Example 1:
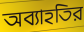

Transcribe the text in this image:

অব্যাহতির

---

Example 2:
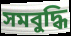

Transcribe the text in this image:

সমবুদ্ধি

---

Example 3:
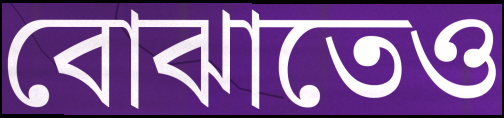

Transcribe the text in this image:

বোঝাতেও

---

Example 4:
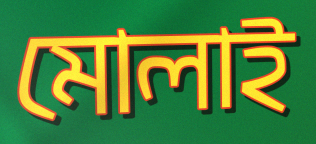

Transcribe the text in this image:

মোলাই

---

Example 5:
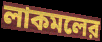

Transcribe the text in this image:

লাকমলের